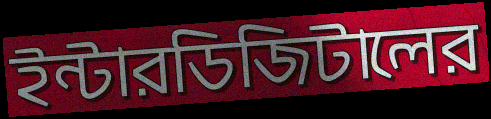
ইন্টারডিজিটালের